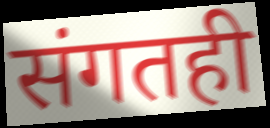
संगतही